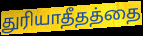
துரியாதீதத்தை